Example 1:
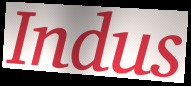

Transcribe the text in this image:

Indus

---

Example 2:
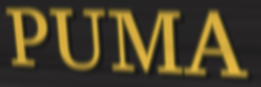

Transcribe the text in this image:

PUMA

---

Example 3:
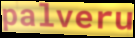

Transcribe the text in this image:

palveru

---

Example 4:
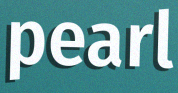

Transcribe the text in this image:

pearl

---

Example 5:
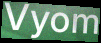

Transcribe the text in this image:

Vyom